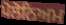
ਪੋਲੋਨਿਅਮ